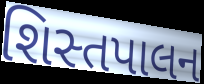
શિસ્તપાલન